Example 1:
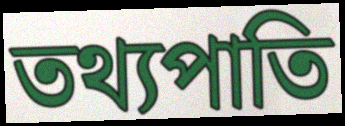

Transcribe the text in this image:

তথ্যপাতি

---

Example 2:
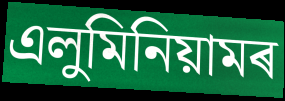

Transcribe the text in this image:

এলুমিনিয়ামৰ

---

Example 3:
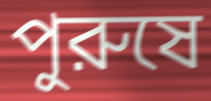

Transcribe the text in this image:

পুৰুষে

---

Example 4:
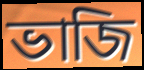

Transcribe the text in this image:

ভাজি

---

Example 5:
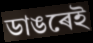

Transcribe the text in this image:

ডাঙৰেই